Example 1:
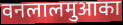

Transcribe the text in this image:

वनलालमुआका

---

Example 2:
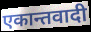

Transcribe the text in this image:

एकान्तवादी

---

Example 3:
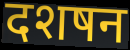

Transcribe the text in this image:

दशषन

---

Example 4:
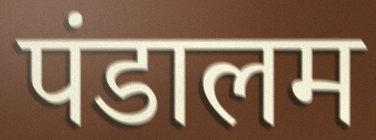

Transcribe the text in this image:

पंडालम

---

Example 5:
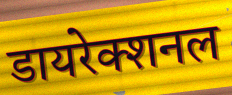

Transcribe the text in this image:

डायरेक्शनल